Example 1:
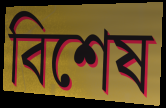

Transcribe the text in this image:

বিশেষ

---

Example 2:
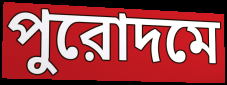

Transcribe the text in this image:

পুরোদমে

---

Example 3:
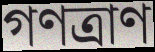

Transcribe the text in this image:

গণত্রাণ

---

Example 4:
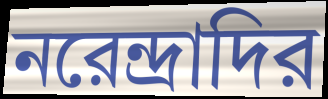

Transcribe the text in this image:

নরেন্দ্রাদির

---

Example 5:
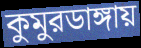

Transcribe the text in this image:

কুমুরডাঙ্গায়